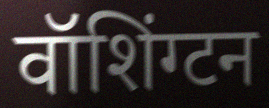
वॉशिंग्टन